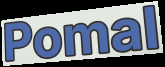
Pomal